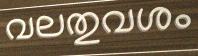
വലതുവശം